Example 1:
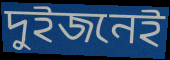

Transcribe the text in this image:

দুইজনেই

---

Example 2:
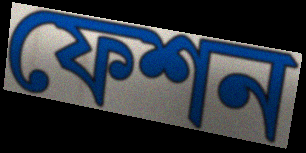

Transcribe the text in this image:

ফেশন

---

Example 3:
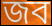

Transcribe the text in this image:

জব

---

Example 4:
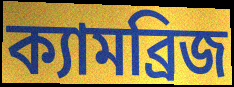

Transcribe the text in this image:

ক্যামব্রিজ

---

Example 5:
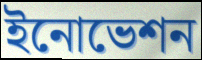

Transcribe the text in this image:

ইনোভেশন